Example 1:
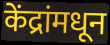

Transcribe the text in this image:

केंद्रांमधून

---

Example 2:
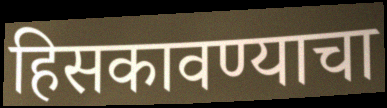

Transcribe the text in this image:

हिसकावण्याचा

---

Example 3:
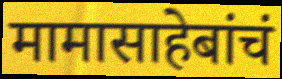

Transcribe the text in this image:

मामासाहेबांचं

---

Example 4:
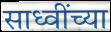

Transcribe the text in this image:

साध्वींच्या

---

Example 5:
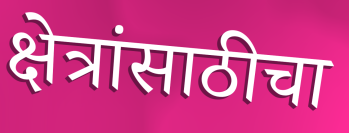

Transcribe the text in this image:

क्षेत्रांसाठीचा